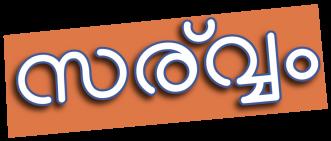
സര്വ്വം